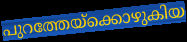
പുറത്തേയ്ക്കൊഴുകിയ